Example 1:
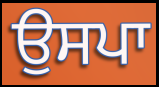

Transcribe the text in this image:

ਉਸਪਾ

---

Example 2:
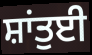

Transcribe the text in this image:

ਸ਼ਾਂਤੁਈ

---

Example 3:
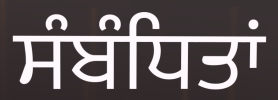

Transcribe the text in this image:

ਸੰਬੰਧਿਤਾਂ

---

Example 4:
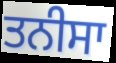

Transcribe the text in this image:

ਤਨੀਸਾ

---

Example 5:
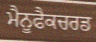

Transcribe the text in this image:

ਮੈਨੂਫੈਕਚਰਡ